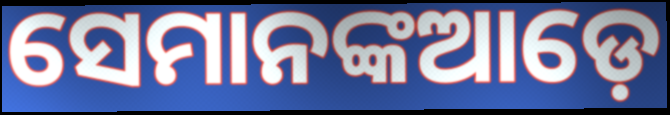
ସେମାନଙ୍କଆଡ଼େ